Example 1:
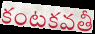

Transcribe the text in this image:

కంటకవతీ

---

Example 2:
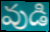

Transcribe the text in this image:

వుడి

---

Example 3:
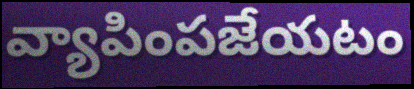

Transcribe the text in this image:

వ్యాపింపజేయటం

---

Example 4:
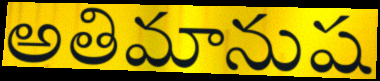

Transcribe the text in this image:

అతిమానుష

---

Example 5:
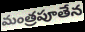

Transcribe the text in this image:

మంత్రపూతేన